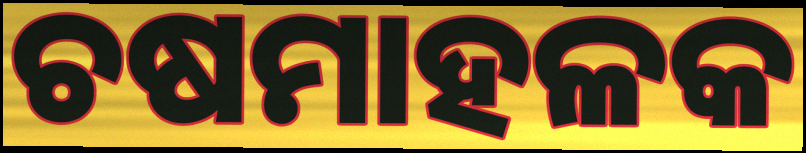
ଚଷମାହଳକ